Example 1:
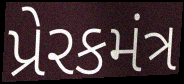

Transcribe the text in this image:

પ્રેરકમંત્ર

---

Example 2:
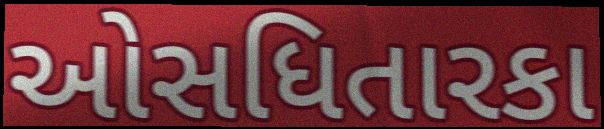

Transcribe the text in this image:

ઓસધિતારકા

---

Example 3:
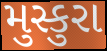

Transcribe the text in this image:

મુસ્કુરા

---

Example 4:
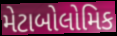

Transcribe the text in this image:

મેટાબોલોમિક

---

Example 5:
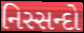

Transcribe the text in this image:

નિસ્સન્દો